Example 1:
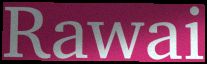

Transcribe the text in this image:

Rawai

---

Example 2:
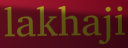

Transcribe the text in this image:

lakhaji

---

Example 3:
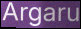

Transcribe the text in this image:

Argaru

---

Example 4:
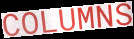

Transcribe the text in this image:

COLUMNS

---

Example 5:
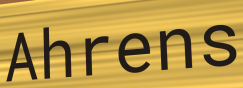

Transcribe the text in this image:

Ahrens